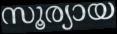
സൂര്യായ